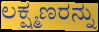
ಲಕ್ಷ್ಮಣರನ್ನು